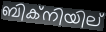
ബിക്നിയില്